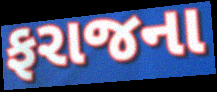
ફરાજના